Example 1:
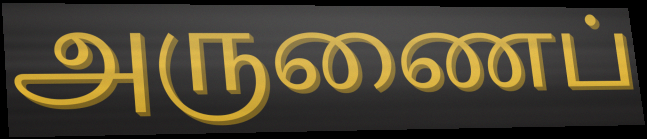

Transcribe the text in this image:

அருணைப்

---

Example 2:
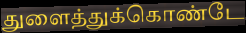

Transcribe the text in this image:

துளைத்துக்கொண்டே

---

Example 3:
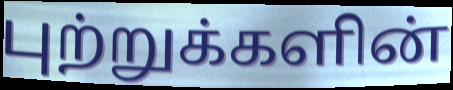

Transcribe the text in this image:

புற்றுக்களின்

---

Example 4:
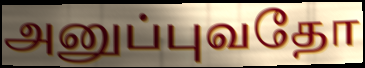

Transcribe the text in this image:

அனுப்புவதோ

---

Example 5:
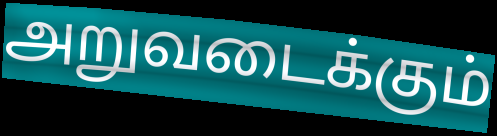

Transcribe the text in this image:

அறுவடைக்கும்